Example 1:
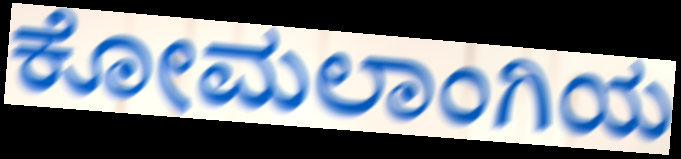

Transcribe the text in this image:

ಕೋಮಲಾಂಗಿಯ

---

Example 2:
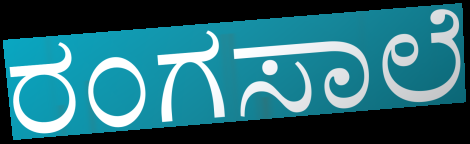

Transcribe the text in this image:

ರಂಗಸಾಲೆ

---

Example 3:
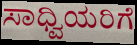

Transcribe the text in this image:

ಸಾಧ್ವಿಯರಿಗೆ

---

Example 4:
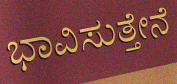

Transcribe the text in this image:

ಭಾವಿಸುತ್ತೇನೆ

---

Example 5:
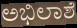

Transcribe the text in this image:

ಅಭಿಲಾಶೆ